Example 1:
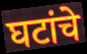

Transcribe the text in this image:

घटांचे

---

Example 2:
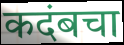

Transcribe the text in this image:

कदंबचा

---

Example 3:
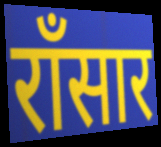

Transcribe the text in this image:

राँसार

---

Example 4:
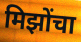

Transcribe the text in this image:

मिझोंचा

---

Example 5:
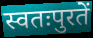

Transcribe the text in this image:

स्वतःपुरतें